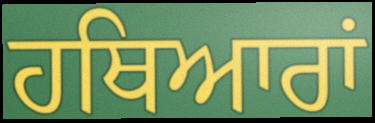
ਹਥਿਆਰਾਂ